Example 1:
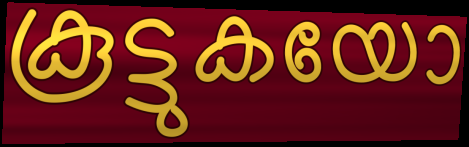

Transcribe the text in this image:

കൂട്ടുകയോ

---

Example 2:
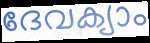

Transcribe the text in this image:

ദേവക്യാം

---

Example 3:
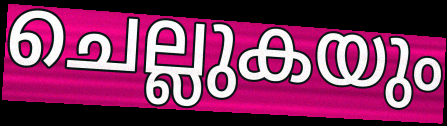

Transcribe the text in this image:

ചെല്ലുകയും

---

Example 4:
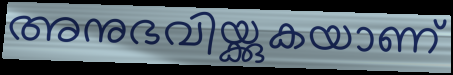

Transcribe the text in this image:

അനുഭവിയ്ക്കുകയാണ്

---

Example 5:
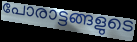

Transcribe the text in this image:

പോരാട്ടങ്ങളുടെ